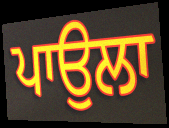
ਪਾਉਲਾ